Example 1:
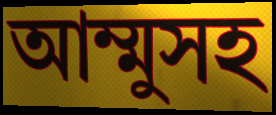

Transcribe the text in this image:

আম্মুসহ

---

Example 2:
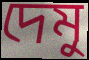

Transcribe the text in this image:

দেমু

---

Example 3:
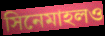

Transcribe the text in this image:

সিনেমাহলও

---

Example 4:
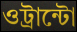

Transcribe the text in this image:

ওট্রান্টো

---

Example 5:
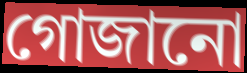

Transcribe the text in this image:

গোজানো